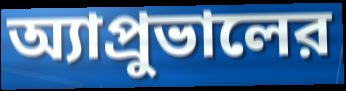
অ্যাপ্রুভালের